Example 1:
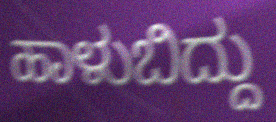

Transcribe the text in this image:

ಹಾಳುಬಿದ್ದು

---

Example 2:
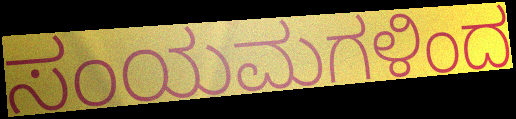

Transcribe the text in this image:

ಸಂಯಮಗಳಿಂದ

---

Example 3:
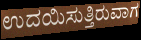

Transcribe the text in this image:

ಉದಯಿಸುತ್ತಿರುವಾಗ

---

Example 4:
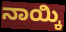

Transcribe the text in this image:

ನಾಯ್ಕಿ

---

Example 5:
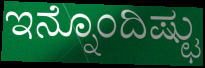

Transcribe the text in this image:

ಇನ್ನೊಂದಿಷ್ಟು